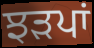
ਝੜਪਾਂ